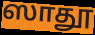
ஸாதூ